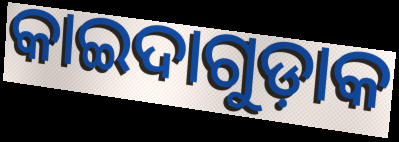
କାଇଦାଗୁଡ଼ାକ